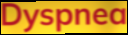
Dyspnea